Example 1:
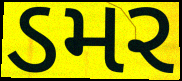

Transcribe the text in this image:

ડમર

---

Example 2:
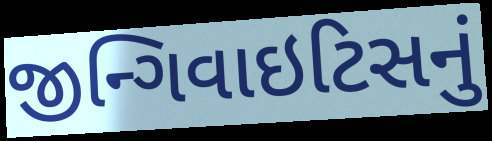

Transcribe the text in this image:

જીન્ગિવાઇટિસનું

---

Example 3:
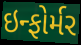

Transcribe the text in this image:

ઇન્ફોર્મર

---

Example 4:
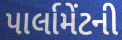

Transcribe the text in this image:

પાર્લામેંટની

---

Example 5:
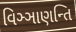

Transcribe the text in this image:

વિઞ્ઞાણન્તિ